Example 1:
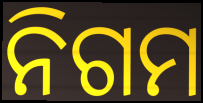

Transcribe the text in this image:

ନିଗମ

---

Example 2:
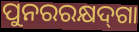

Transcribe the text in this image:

ପୁନରରକ୍ଷଦ୍‌ଗା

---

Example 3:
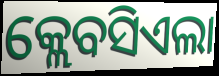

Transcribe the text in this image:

କ୍ଲେବସିଏଲା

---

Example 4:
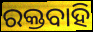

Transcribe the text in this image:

ରକ୍ତବାହି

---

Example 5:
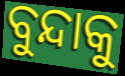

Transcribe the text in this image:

ବୁନ୍ଦାକୁ